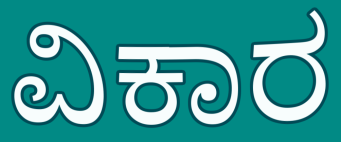
ವಿಕಾರ